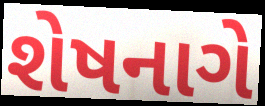
શેષનાગે